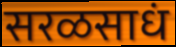
सरळसाधं